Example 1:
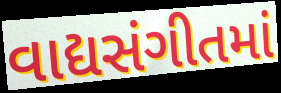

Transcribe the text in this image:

વાદ્યસંગીતમાં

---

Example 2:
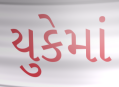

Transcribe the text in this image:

યુકેમાં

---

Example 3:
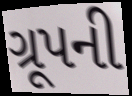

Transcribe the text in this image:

ગ્રૂપની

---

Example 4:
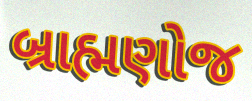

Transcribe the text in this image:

બ્રાહ્મણોજ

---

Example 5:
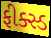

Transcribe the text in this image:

ફીક્સ્ડ